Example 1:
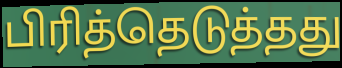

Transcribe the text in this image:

பிரித்தெடுத்தது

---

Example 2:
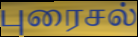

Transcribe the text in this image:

புரைசல்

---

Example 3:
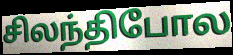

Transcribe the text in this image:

சிலந்திபோல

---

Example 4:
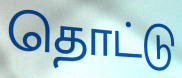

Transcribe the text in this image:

தொட்டு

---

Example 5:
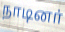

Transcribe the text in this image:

நாடினர்